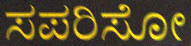
ಸಪರಿಸೋ